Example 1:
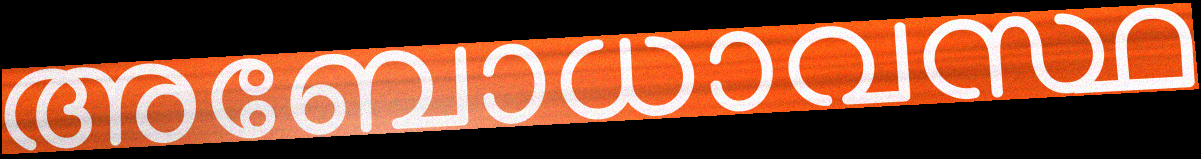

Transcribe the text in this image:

അബോധാവസ്ഥ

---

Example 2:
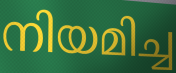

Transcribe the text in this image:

നിയമിച്ച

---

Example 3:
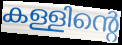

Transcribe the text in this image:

കള്ളിന്റെ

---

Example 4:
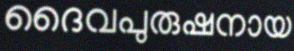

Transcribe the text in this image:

ദൈവപുരുഷനായ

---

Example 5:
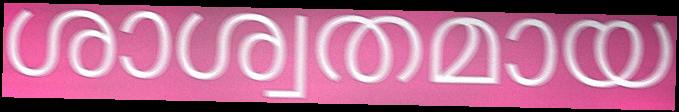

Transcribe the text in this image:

ശാശ്വതമായ